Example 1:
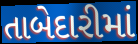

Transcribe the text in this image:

તાબેદારીમાં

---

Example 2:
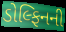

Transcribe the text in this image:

ડોલ્ફિનની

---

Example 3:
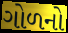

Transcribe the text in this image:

ગોળનો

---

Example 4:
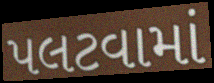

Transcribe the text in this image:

પલટવામાં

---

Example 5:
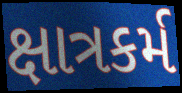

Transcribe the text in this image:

ક્ષાત્રકર્મ